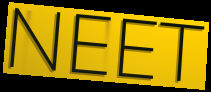
NEET